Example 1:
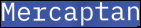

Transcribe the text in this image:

Mercaptan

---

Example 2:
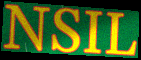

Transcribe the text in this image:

NSIL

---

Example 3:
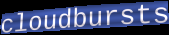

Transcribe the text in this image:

cloudbursts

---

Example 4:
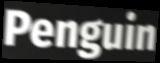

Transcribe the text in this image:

Penguin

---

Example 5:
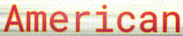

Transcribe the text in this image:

American